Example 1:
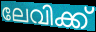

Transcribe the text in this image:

ലേവിക്ക്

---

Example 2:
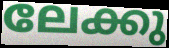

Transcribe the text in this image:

ലേക്കു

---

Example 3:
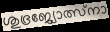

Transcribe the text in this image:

ശുഭ്രജ്യോത്സ്നാ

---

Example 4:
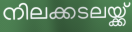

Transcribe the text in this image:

നിലക്കടലയ്ക്ക്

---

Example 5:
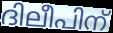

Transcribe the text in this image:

ദിലീപിന്